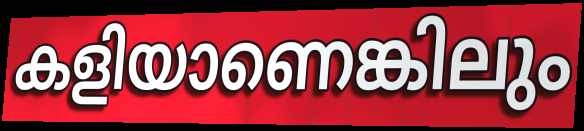
കളിയാണെങ്കിലും